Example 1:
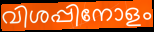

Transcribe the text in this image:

വിശപ്പിനോളം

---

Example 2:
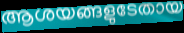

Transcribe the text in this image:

ആശയങ്ങളുടേതായ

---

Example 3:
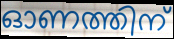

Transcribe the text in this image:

ഓണത്തിന്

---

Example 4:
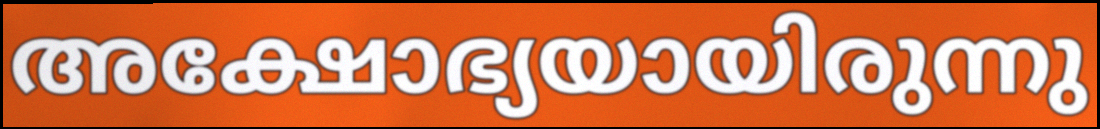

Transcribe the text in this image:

അക്ഷോഭ്യയായിരുന്നു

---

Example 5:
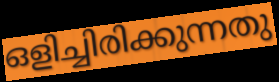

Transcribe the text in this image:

ഒളിച്ചിരിക്കുന്നതു